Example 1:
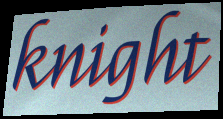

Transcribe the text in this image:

knight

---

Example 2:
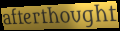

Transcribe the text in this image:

afterthought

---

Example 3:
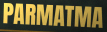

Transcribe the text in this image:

PARMATMA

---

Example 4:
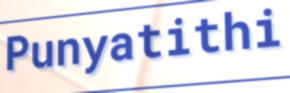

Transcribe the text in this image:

Punyatithi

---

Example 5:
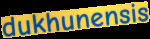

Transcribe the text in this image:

dukhunensis